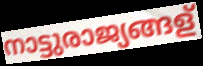
നാട്ടുരാജ്യങ്ങള്